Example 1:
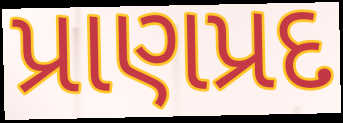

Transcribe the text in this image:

પ્રાણપ્રદ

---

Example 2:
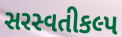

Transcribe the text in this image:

સરસ્વતીકલ્પ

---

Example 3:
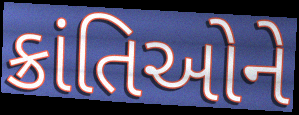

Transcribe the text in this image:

ક્રાંતિઓને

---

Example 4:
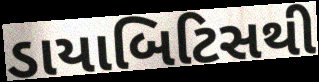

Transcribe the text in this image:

ડાયાબિટિસથી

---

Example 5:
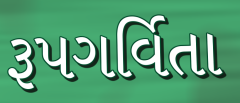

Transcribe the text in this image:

રૂપગર્વિતા